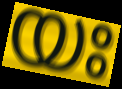
യഃ